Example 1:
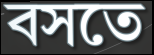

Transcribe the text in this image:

বসতে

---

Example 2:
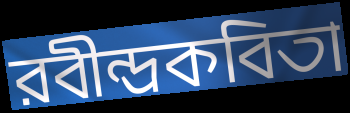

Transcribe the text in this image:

রবীন্দ্রকবিতা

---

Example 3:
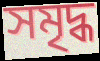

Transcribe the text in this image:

সমৃদ্ধ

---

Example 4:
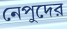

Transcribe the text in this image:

নেপুদের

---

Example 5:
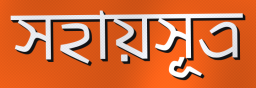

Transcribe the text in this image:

সহায়সূত্র